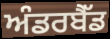
ਅੰਡਰਬੈੱਡ